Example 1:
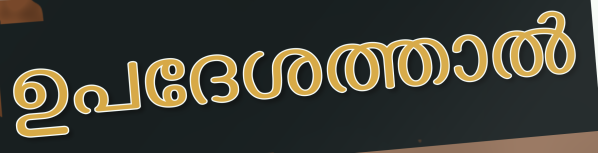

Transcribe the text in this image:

ഉപദേശത്താൽ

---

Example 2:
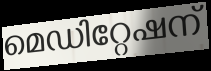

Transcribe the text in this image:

മെഡിറ്റേഷന്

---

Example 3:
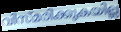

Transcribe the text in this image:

വിസ്മരിക്കുകയില്ല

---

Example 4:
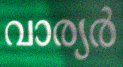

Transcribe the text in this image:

വാര്യർ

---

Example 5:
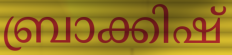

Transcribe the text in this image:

ബ്രാക്കിഷ്